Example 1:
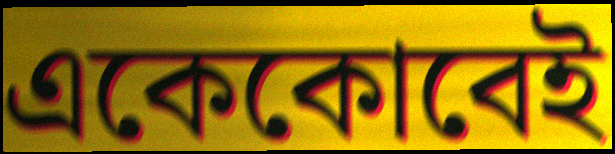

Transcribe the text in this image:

একেকোবেই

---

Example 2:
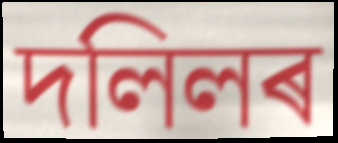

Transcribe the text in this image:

দলিলৰ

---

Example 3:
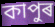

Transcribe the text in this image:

কাপুৰ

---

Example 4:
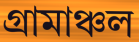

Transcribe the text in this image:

গ্ৰামাঞ্চল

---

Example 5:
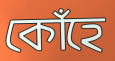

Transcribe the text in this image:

কোঁহে